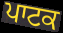
ਪਾਟਕ